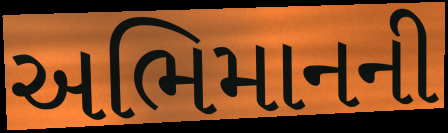
અભિમાનની